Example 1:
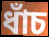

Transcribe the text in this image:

ধাঁচ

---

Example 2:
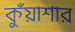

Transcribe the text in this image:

কুঁয়াশার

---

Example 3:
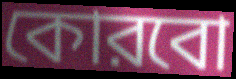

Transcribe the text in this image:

কোরবো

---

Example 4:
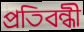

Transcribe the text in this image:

প্রতিবন্ধী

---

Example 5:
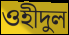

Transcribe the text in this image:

ওহীদুল